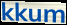
kkum